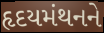
હૃદયમંથનને